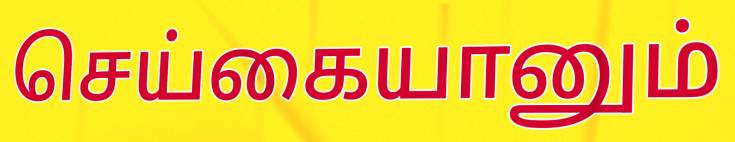
செய்கையானும்